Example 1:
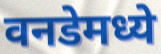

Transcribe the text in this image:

वनडेमध्ये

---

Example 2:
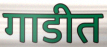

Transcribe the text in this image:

गाडीत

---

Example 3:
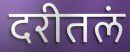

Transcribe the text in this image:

दरीतलं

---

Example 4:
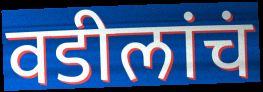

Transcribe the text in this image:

वडीलांचं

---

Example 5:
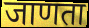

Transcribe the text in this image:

जाणता